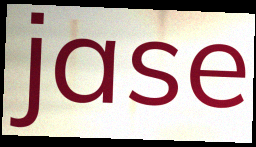
jase